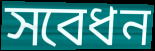
সবেধন